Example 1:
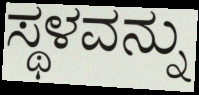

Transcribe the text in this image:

ಸ್ಥಳವನ್ನು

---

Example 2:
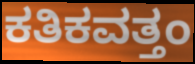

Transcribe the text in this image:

ಕತಿಕವತ್ತಂ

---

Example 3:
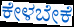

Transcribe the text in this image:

ಕೇಳಬೇಕೆ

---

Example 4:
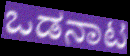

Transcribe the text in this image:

ಒಡನಾಟ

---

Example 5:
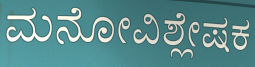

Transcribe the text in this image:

ಮನೋವಿಶ್ಲೇಷಕ